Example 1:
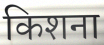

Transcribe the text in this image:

किशना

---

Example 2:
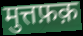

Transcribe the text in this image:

मुत्तफ़क़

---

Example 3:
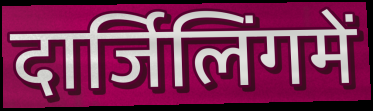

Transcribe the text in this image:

दार्जिलिंगमें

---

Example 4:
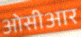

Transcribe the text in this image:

ओसीआर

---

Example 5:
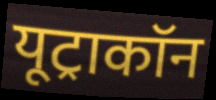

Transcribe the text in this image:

यूट्राकॉन